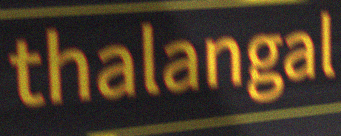
thalangal